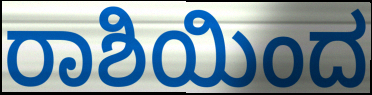
ರಾಶಿಯಿಂದ